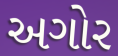
અગોર